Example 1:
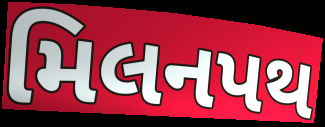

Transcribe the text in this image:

મિલનપથ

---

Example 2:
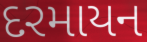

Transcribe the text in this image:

દરમાયન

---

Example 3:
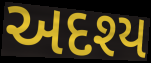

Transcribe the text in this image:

અદશ્ય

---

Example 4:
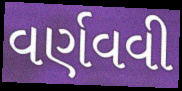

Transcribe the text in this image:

વર્ણવવી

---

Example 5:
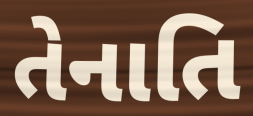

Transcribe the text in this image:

તેનાતિ